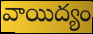
వాయిద్యం